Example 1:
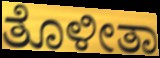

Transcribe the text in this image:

ತೊಳೀತಾ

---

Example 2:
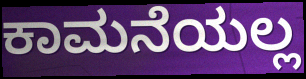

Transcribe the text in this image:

ಕಾಮನೆಯಲ್ಲ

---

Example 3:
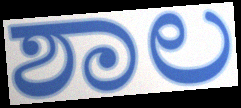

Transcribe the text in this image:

ಶಾಲ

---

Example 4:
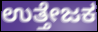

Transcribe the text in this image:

ಉತ್ತೇಜಕ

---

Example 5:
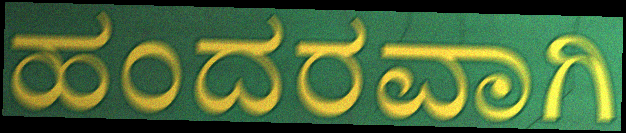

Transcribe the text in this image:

ಹಂದರವಾಗಿ